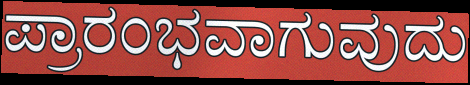
ಪ್ರಾರಂಭವಾಗುವುದು